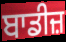
ਬਾਡੀਜ਼